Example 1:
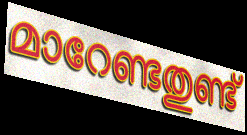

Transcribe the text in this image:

മാറേണ്ടതുണ്ട്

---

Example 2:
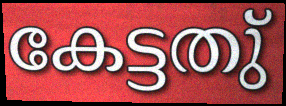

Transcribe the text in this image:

കേട്ടതു്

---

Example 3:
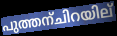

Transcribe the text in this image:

പുത്തന്ചിറയില്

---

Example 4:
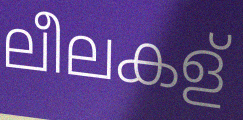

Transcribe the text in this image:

ലീലകള്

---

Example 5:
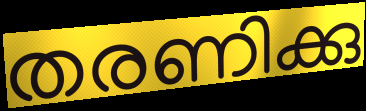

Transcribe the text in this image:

തരണിക്കു